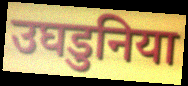
उघडुनिया